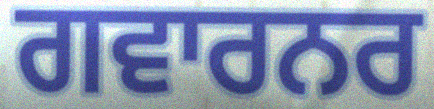
ਗਵਾਰਨਰ